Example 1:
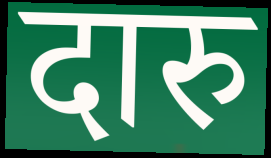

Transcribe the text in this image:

दारु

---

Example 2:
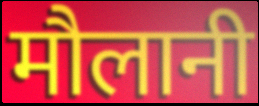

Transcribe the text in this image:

मौलानी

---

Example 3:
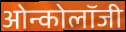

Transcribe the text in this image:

ओन्कोलॉजी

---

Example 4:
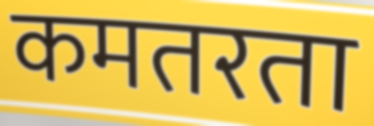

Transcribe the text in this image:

कमतरता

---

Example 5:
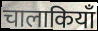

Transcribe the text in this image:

चालाकियाँ